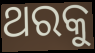
ଥରକୁ